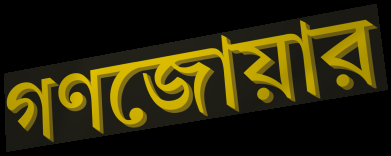
গণজোয়ার